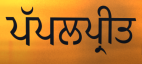
ਪੱਪਲਪ੍ਰੀਤ